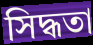
সিদ্ধতা